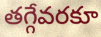
తగ్గేవరకూ